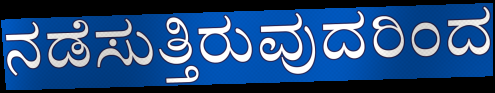
ನಡೆಸುತ್ತಿರುವುದರಿಂದ